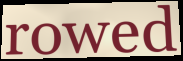
rowed